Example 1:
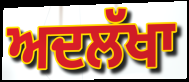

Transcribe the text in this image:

ਅਦਲੱਖਾ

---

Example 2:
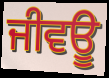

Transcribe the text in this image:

ਜੀਵਊ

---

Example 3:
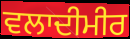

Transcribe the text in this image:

ਵਲਾਦੀਮੀਰ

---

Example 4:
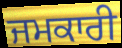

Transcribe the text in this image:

ਜਮਕਾਰੀ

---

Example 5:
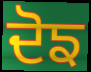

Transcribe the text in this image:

ਦੋਙ